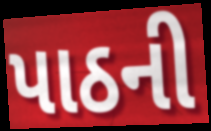
પાઠની